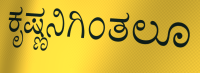
ಕೃಷ್ಣನಿಗಿಂತಲೂ